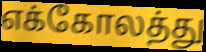
எக்கோலத்து